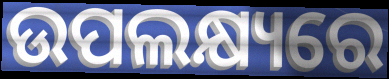
ଉପଲକ୍ଷ୍ୟରେ